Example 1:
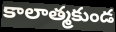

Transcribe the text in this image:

కాలాత్మకుండ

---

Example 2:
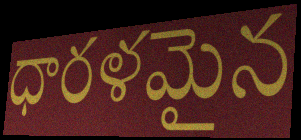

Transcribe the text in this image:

ధారళమైన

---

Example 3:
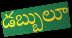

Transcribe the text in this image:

డబ్బులూ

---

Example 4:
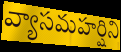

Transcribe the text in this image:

వ్యాసమహర్షిని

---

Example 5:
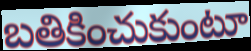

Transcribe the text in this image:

బతికించుకుంటూ